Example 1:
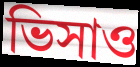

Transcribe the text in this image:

ভিসাও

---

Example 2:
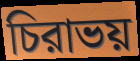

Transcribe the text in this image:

চিরাভয়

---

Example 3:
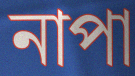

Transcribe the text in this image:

নাপা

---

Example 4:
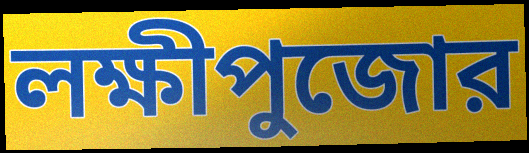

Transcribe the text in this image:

লক্ষীপুজোর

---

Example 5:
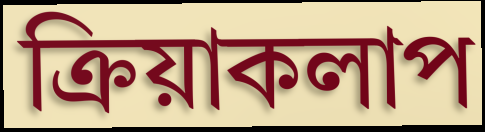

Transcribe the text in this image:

ক্রিয়াকলাপ